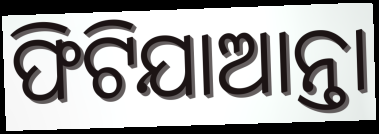
ଫିଟିଯାଆନ୍ତା